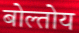
बोल्तोय